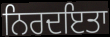
ਨਿਰਦਇਤਾ